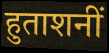
हुताशनीं